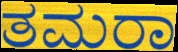
ತಮರಾ